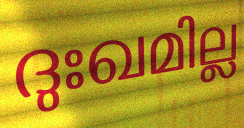
ദുഃഖമില്ല